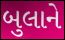
બુલાને